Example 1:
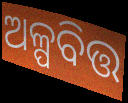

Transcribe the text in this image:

ଅଳ୍ପବିତ୍ତ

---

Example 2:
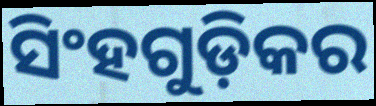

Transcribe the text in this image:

ସିଂହଗୁଡ଼ିକର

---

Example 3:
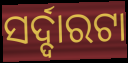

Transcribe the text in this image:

ସର୍ଦ୍ଦାରଟା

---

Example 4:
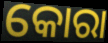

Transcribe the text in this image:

କୋରା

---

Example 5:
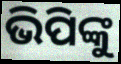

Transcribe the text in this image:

ଭିପିଙ୍କୁ